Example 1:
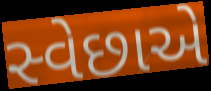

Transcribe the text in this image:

સ્વેછાએ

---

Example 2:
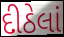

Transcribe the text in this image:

દીઠેલાં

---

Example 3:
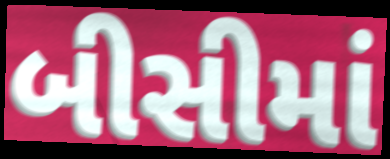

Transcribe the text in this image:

બીસીમાં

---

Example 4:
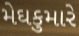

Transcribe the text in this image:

મેઘકુમારે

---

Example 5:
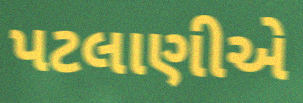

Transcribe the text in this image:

પટલાણીએ